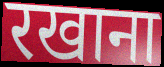
रखाना